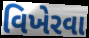
વિખેરવા